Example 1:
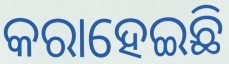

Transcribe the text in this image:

କରାହେଇଛି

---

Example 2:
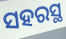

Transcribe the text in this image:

ସହରସ୍ଥ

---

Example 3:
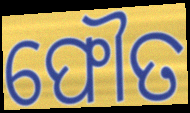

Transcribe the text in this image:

ଫୌତ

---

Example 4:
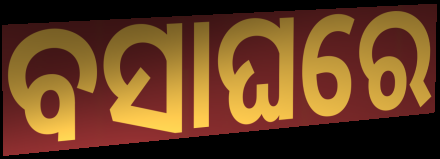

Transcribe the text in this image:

ବସାଘରେ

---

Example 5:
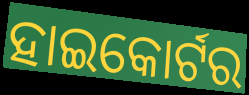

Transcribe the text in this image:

ହାଇକୋର୍ଟର